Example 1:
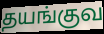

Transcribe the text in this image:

தயங்குவ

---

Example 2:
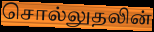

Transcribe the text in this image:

சொல்லுதலின்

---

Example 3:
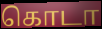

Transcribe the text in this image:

கொடா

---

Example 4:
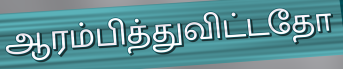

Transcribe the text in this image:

ஆரம்பித்துவிட்டதோ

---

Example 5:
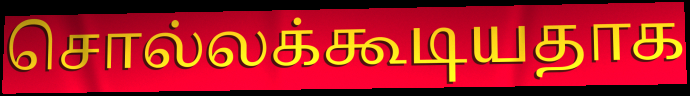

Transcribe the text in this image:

சொல்லக்கூடியதாக